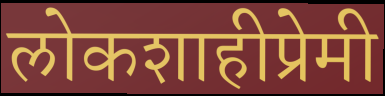
लोकशाहीप्रेमी